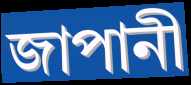
জাপানী